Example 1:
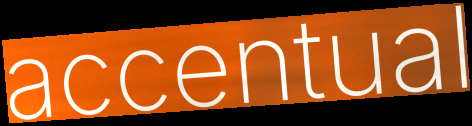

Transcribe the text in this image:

accentual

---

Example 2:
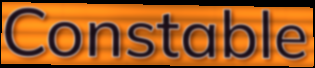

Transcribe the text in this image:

Constable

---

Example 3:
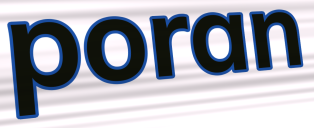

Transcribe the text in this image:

poran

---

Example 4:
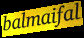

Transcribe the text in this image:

balmaifal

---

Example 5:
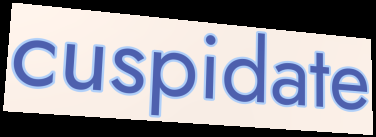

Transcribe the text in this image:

cuspidate